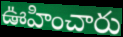
ఊహించారు